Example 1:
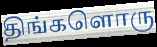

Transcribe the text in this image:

திங்களொரு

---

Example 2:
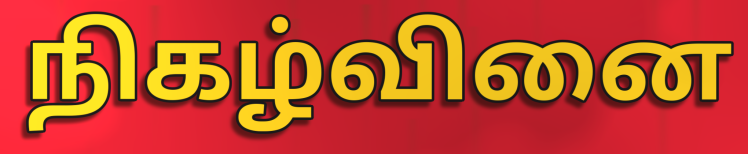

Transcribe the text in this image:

நிகழ்வினை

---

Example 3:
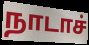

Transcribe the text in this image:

நாடாச்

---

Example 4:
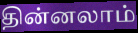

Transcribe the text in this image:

தின்னலாம்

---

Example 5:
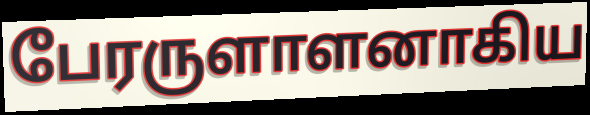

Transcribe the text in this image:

பேரருளாளனாகிய